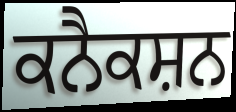
ਕਨੈਕਸ਼ਨ